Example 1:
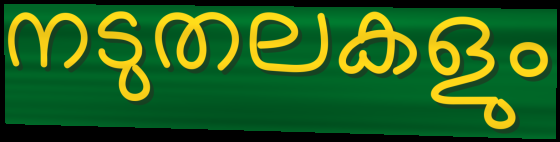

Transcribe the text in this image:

നടുതലകളും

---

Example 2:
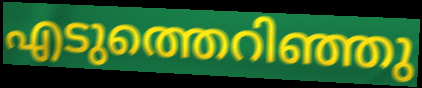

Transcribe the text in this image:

എടുത്തെറിഞ്ഞു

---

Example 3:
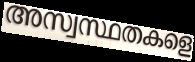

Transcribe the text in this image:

അസ്വസ്ഥതകളെ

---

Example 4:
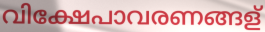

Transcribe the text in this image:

വിക്ഷേപാവരണങ്ങള്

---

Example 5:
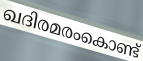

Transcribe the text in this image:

ഖദിരമരംകൊണ്ട്